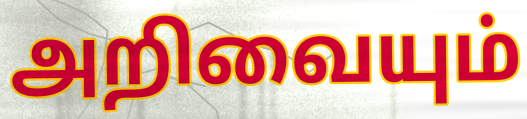
அறிவையும்